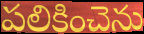
పలికించెను